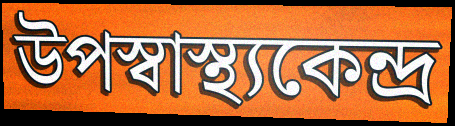
উপস্বাস্থ্যকেন্দ্র